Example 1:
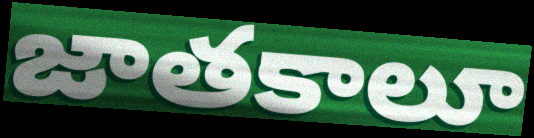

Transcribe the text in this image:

జాతకాలూ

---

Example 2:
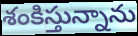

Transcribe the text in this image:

శంకిస్తున్నాను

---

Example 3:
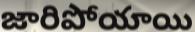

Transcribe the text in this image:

జారిపోయాయి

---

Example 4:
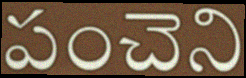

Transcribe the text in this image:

పంచెని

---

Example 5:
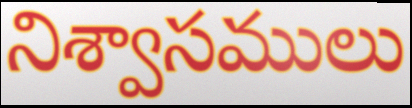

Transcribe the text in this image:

నిశ్వాసములు